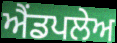
ਐਂਡਪਲੇਅ